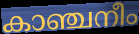
കാഞ്ചനീം